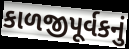
કાળજીપૂર્વકનું